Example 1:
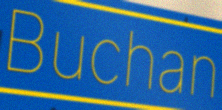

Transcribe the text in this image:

Buchan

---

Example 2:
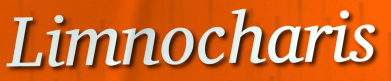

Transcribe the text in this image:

Limnocharis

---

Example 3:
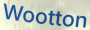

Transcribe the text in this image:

Wootton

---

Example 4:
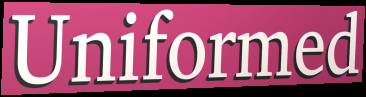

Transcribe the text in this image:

Uniformed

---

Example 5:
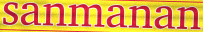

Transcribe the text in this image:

sanmanan